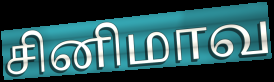
சினிமாவ